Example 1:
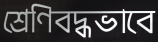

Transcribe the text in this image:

শ্রেণিবদ্ধভাবে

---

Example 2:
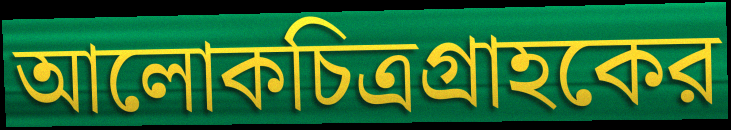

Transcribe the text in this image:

আলোকচিত্রগ্রাহকের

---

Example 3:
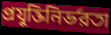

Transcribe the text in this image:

প্রযুক্তিনির্ভরতা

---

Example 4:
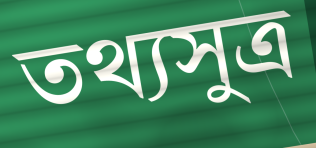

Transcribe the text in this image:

তথ্যসুত্র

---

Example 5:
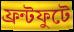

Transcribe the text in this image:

ফ্রন্টফুটে